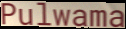
Pulwama